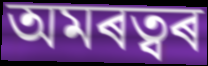
অমৰত্বৰ